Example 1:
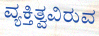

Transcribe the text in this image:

ವ್ಯಕ್ತಿತ್ವವಿರುವ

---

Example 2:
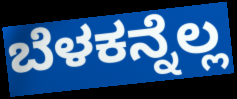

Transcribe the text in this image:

ಬೆಳಕನ್ನೆಲ್ಲ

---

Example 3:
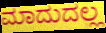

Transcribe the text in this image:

ಮಾದುದಲ್ಲ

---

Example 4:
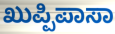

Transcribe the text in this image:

ಖುಪ್ಪಿಪಾಸಾ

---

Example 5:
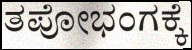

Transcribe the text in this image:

ತಪೋಭಂಗಕ್ಕೆ